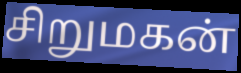
சிறுமகன்